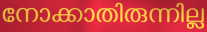
നോക്കാതിരുന്നില്ല